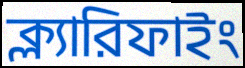
ক্ল্যারিফাইং